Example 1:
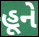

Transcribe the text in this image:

હૂને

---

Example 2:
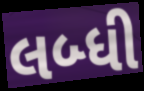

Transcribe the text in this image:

લબ્ધી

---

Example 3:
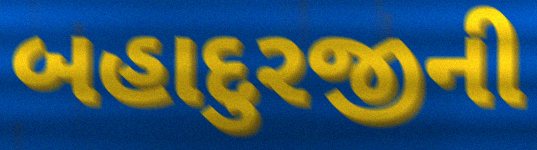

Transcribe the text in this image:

બહાદુરજીની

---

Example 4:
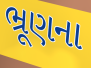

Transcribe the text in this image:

ભ્રૂણના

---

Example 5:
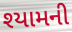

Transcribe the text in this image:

શ્યામની